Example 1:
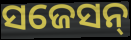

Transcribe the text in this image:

ସଜେସନ୍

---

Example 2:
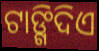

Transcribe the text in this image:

ଟାଙ୍ଗିଦିଏ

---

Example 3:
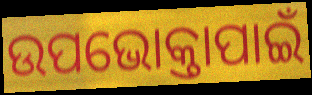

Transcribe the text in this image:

ଉପଭୋକ୍ତାପାଇଁ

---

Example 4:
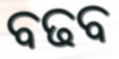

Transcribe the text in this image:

ବଢବ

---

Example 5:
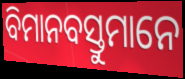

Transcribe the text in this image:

ବିମାନବସ୍ତୁମାନେ